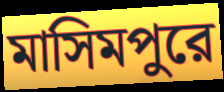
মাসিমপুরে